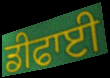
ਡੀਫਾਈ